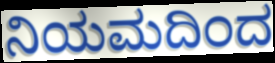
ನಿಯಮದಿಂದ